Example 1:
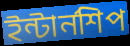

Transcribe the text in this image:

ইন্টার্নশিপ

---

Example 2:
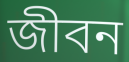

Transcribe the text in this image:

জীবন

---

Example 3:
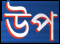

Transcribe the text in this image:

উপ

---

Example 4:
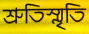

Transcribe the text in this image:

শ্রুতিস্মৃতি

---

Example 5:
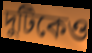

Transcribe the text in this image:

দুটিকেও